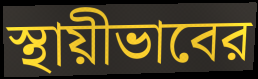
স্থায়ীভাবের